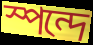
স্পন্দে